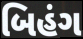
બિહંગ